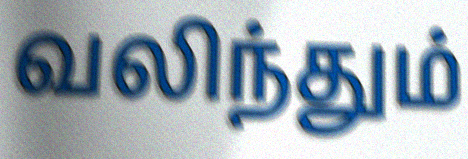
வலிந்தும்